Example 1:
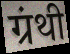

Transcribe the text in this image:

ग्रंथी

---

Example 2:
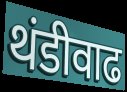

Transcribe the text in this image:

थंडीवाढ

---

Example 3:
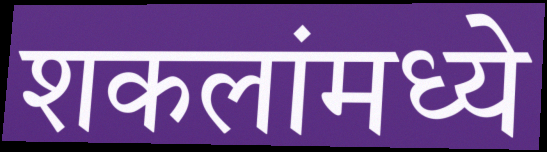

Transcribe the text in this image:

शकलांमध्ये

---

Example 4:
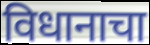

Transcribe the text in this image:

विधानाचा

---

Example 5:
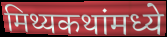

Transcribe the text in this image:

मिथ्यकथांमध्ये